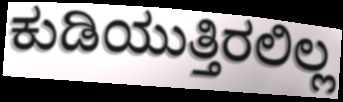
ಕುಡಿಯುತ್ತಿರಲಿಲ್ಲ